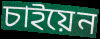
চাইয়েন